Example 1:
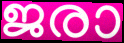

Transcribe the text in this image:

ജരാ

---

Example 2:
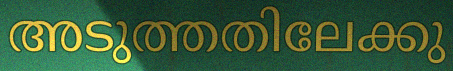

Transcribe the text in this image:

അടുത്തതിലേക്കു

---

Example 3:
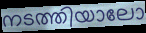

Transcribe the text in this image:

നടത്തിയാലോ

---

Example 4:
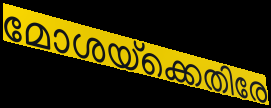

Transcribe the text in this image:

മോശയ്‌ക്കെതിരേ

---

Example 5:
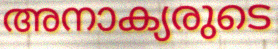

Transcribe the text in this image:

അനാക്യരുടെ